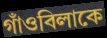
গাঁওবিলাকে